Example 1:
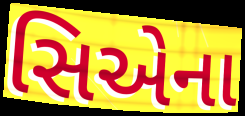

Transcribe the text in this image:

સિએના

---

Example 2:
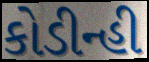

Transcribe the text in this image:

કોડીન્હી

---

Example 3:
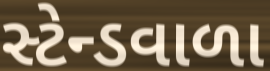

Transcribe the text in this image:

સ્ટેન્ડવાળા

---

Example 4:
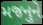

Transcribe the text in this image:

મજનુને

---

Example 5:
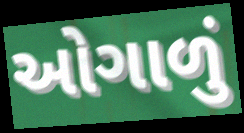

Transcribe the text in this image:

ઓગાળું